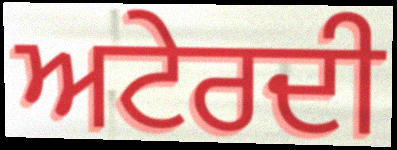
ਅਟੇਰਦੀ